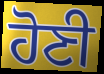
ਹੋਣੀ